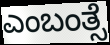
ಎಂಬಂತ್ಸೆ